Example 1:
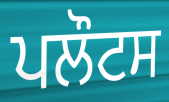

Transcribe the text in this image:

ਪਲੌਟਸ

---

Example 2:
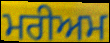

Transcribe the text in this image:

ਮਰੀਅਮ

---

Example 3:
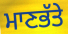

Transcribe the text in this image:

ਮਾਣਭੱਤੇ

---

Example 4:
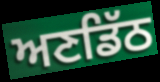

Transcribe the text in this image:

ਅਣਡਿੱਠ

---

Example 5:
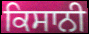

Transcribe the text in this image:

ਕਿਸਾਨੀ